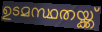
ഉടമസ്ഥതയ്ക്ക്